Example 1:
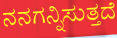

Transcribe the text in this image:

ನನಗನ್ನಿಸುತ್ತದೆ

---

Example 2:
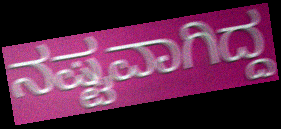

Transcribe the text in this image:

ನಷ್ಟವಾಗಿದ್ದ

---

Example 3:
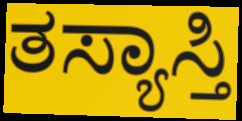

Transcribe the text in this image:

ತಸ್ಯಾಸ್ತಿ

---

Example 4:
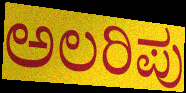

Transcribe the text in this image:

ಅಲರಿಪು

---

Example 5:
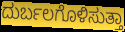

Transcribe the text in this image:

ದುರ್ಬಲಗೊಳಿಸುತ್ತಾ